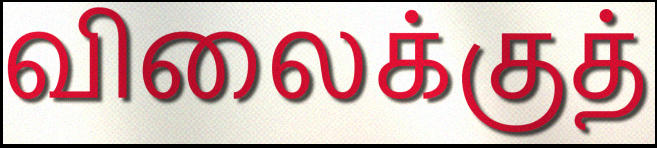
விலைக்குத்